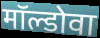
मॉल्डोवा